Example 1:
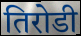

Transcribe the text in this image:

तिरोडी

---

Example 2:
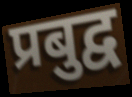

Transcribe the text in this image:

प्रबुद्व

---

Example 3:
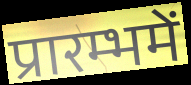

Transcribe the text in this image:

प्रारम्भमें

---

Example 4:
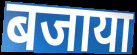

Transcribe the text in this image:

बजाया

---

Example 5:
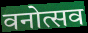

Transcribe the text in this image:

वनोत्सव